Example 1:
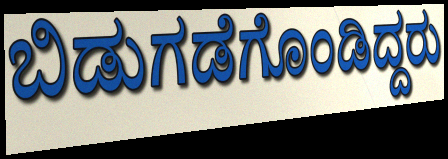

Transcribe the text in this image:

ಬಿಡುಗಡೆಗೊಂಡಿದ್ದರು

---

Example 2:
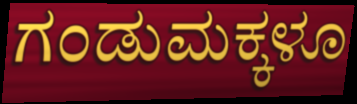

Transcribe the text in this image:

ಗಂಡುಮಕ್ಕಳೂ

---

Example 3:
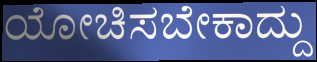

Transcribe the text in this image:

ಯೋಚಿಸಬೇಕಾದ್ದು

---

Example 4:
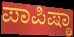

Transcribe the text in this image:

ಪಾಪಿಷ್ಠಾ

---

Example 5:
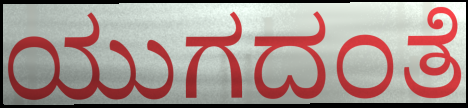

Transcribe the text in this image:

ಯುಗದಂತೆ